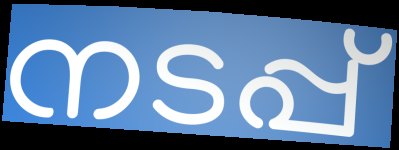
നടപ്പ്